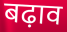
बढ़ाव